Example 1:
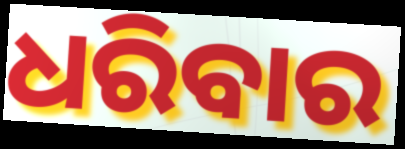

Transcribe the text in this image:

ଧରିବାର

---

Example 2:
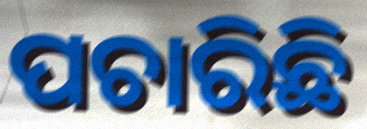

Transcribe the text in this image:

ପଚାରିଛି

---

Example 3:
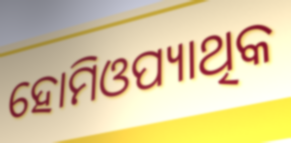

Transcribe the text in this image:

ହୋମିଓପ୍ୟାଥିକ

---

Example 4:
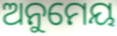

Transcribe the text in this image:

ଅନୁମେୟ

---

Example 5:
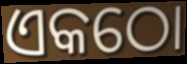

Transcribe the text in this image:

ଏକଠୋ